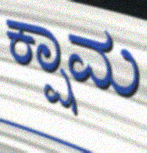
ಕ್ಷಾಮ